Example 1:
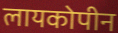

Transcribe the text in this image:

लायकोपीन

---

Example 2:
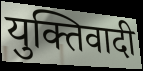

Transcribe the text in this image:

युक्तिवादी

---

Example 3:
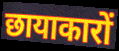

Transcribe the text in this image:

छायाकारों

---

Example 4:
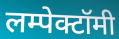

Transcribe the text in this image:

लम्पेक्टॉमी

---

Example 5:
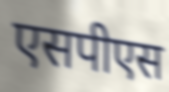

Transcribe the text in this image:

एसपीएस